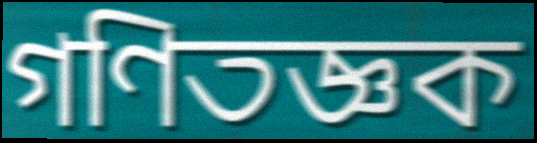
গণিতজ্ঞক